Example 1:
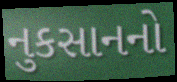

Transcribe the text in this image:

નુકસાનનો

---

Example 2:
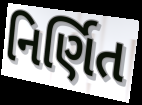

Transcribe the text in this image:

નિર્ણિત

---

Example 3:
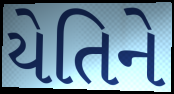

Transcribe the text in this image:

યેતિને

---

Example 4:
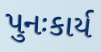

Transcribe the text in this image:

પુનઃકાર્ય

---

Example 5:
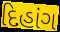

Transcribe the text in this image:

દિહાંગ